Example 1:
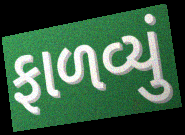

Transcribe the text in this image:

ફાળવ્યું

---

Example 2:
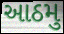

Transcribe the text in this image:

આઠમુ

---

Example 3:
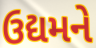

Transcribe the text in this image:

ઉદ્યમને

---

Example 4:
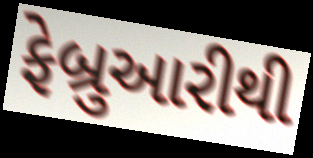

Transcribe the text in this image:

ફેબ્રુઆરીથી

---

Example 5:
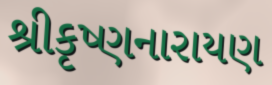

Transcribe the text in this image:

શ્રીકૃષ્ણનારાયણ